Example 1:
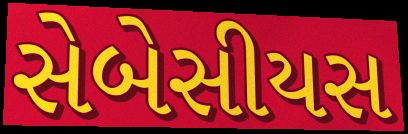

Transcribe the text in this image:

સેબેસીયસ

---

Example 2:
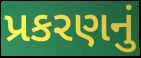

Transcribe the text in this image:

પ્રકરણનું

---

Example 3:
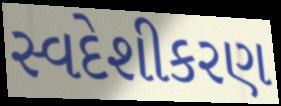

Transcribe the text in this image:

સ્વદેશીકરણ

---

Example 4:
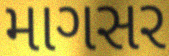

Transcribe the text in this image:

માગસર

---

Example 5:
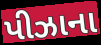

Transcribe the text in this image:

પીઝાના